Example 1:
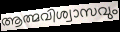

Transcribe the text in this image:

ആത്മവിശ്വാസവും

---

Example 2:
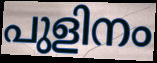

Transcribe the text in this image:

പുളിനം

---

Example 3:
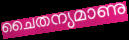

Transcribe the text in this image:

ചൈതന്യമാണു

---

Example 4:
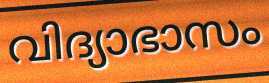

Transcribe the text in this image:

വിദ്യാഭാസം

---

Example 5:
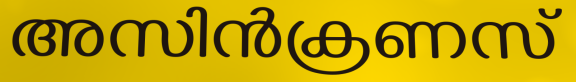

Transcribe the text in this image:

അസിൻക്രണസ്